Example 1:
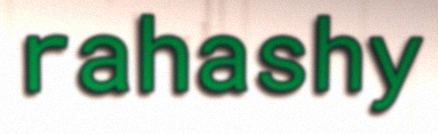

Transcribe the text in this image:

rahashy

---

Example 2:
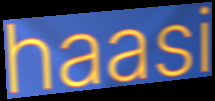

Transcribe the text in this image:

haasi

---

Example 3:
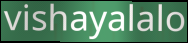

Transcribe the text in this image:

vishayalalo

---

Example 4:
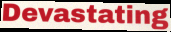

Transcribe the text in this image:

Devastating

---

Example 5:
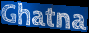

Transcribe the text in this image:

Ghatna